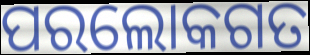
ପରଲୋକଗତ